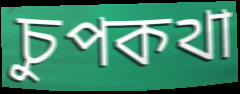
চুপকথা